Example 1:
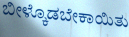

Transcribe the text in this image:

ಬೀಳ್ಕೊಡಬೇಕಾಯಿತು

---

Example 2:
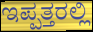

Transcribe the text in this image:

ಇಪ್ಪತ್ತರಲ್ಲಿ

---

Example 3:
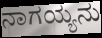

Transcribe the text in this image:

ನಾಗಯ್ಯನು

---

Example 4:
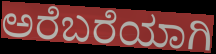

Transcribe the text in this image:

ಅರೆಬರೆಯಾಗಿ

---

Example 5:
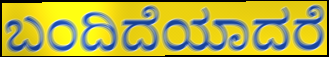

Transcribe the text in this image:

ಬಂದಿದೆಯಾದರೆ